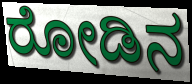
ರೋಡಿನ